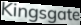
Kingsgate